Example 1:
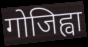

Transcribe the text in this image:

गोजिह्वा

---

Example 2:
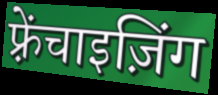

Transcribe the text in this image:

फ़्रेंचाइज़िंग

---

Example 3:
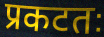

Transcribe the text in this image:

प्रकटतः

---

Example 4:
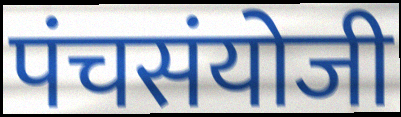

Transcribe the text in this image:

पंचसंयोजी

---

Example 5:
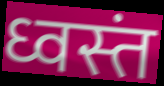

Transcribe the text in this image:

ध्वस्तं